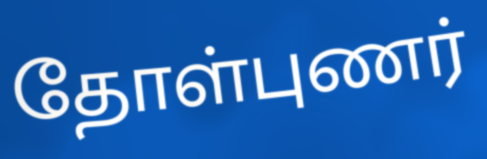
தோள்புணர்